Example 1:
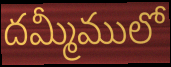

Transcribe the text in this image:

దమ్మీములో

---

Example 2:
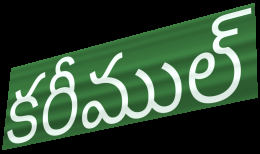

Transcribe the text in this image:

కరీముల్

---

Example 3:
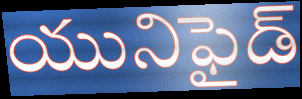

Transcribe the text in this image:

యునిఫైడ్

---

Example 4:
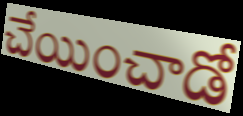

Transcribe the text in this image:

చేయించాడో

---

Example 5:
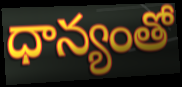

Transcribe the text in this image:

ధాన్యంతో